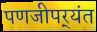
पणजीपर्यंत